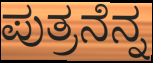
ಪುತ್ರನೆನ್ನ